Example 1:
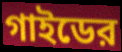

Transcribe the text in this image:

গাইডের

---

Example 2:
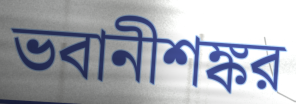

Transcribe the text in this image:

ভবানীশঙ্কর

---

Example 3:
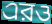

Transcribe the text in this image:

এরও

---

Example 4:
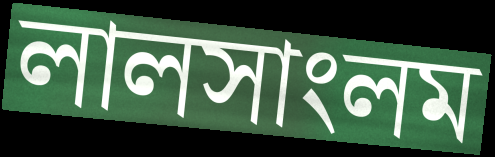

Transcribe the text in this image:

লালসাংলম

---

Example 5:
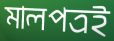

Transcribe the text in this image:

মালপত্রই